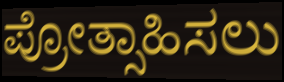
ಪ್ರೋತ್ಸಾಹಿಸಲು